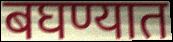
बघण्यात